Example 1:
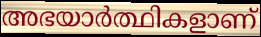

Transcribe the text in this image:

അഭയാർത്ഥികളാണ്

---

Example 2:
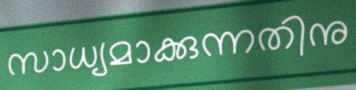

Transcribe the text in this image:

സാധ്യമാക്കുന്നതിനു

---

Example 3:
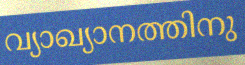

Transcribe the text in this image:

വ്യാഖ്യാനത്തിനു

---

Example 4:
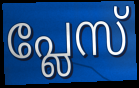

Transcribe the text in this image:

പ്ലേസ്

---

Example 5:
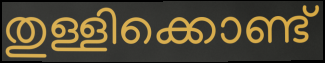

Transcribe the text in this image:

തുള്ളിക്കൊണ്ട്